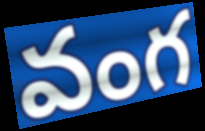
వంగ